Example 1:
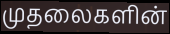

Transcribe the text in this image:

முதலைகளின்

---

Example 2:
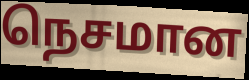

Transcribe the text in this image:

நெசமான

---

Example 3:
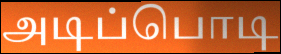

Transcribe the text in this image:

அடிப்பொடி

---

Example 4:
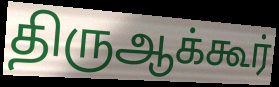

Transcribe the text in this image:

திருஆக்கூர்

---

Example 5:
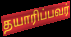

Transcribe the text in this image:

தயாரிப்பவர்